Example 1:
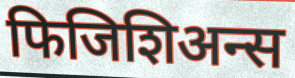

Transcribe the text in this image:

फिजिशिअन्स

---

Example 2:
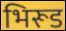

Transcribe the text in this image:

भिरूड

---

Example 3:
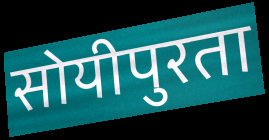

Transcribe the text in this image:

सोयीपुरता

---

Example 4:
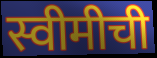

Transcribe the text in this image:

स्वीमीची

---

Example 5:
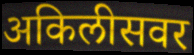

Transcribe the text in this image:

अकिलीसवर